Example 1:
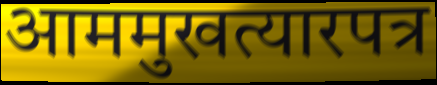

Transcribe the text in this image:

आममुखत्यारपत्र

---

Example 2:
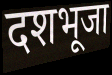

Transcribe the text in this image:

दशभूजा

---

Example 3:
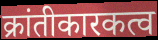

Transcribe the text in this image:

क्रांतीकारकत्व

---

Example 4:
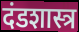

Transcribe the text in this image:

दंडशास्त्र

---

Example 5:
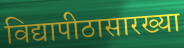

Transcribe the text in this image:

विद्यापीठासारख्या